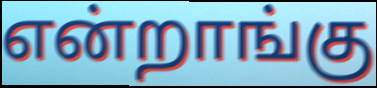
என்றாங்கு